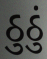
ઠુઠું